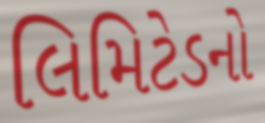
લિમિટેડનો